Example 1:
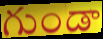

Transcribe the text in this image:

గుండా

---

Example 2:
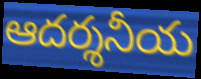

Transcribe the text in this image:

ఆదర్శనీయ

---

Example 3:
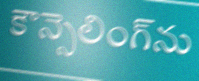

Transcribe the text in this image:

కౌన్సెలింగ్‌ను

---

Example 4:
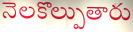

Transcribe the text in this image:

నెలకొల్పుతారు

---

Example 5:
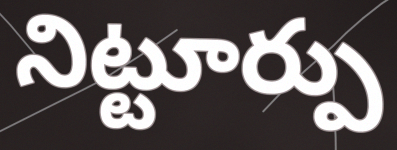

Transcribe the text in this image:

నిట్టూర్పు